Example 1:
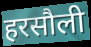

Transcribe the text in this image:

हरसौली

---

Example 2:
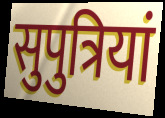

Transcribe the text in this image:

सुपुत्रियां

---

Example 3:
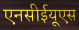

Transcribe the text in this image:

एनसीईयूएस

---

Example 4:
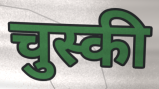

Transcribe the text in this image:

चुस्की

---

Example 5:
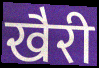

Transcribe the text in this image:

खैरी